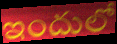
ఇందులో